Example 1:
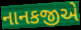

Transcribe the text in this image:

નાનકજીએ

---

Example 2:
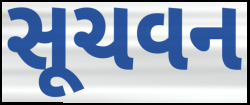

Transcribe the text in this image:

સૂચવન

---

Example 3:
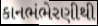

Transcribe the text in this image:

કાનભંભેરણીથી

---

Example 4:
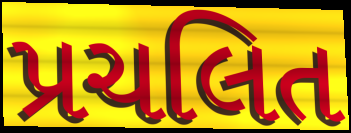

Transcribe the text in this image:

પ્રચલિત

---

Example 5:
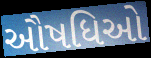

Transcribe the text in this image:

ઔષધિઓ